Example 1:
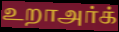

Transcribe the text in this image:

உறாஅர்க்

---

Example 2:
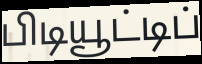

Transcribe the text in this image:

பிடியூட்டிப்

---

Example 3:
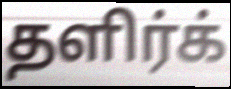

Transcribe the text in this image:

தளிர்க்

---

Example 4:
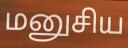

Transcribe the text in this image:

மனுசிய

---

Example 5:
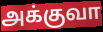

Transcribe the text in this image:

அக்குவா